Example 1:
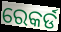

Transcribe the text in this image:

ରେକର୍ଡ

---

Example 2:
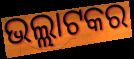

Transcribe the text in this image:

ଭଲ୍ଲାଟକର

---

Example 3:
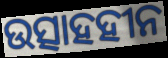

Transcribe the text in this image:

ଉତ୍ସାହହୀନ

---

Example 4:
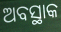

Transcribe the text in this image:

ଅବସ୍ଥାକ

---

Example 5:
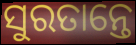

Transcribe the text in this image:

ସୁରତାନ୍ତେ